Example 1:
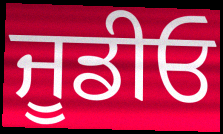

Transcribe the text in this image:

ਜੂਡੀਓ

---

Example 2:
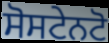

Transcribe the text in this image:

ਸੋਸਟੇਨਟੋ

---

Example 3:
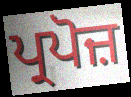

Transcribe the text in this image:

ਪ੍ਰਪੋਜ਼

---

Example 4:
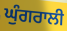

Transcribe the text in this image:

ਘੁੰਗਰਾਲੀ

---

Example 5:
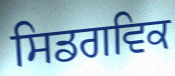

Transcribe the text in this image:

ਸਿਡਗਵਿਕ